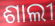
ଶାଲୀ